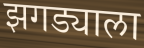
झगड्याला